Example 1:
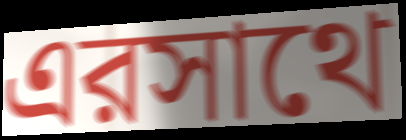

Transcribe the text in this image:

এরসাথে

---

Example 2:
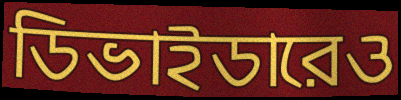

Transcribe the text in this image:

ডিভাইডারেও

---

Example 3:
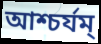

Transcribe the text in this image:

আশ্চর্যম্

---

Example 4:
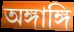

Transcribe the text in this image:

অঙ্গাঙ্গি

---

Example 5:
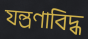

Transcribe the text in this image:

যন্ত্রণাবিদ্ধ